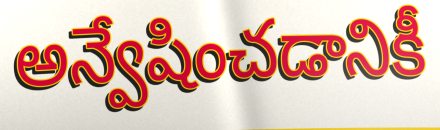
అన్వేషించడానికీ